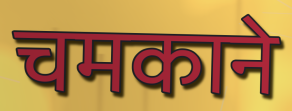
चमकाने